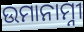
ଉମାନାମ୍ନୀ